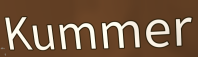
Kummer